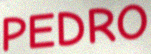
PEDRO